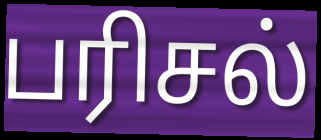
பரிசல்